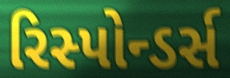
રિસ્પોન્ડર્સ